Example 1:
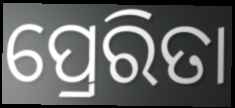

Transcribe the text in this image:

ପ୍ରେରିତା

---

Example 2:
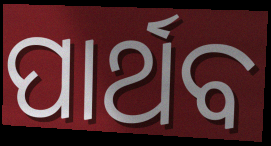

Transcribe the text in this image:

ପାର୍ଥବ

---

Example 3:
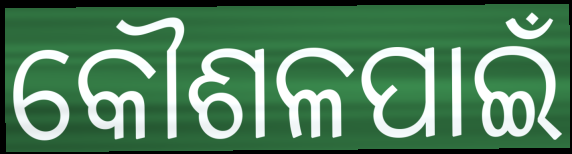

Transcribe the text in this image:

କୌଶଳପାଇଁ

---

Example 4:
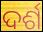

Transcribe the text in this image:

ଦର୍ଶ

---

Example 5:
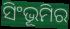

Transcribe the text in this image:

ସିଂଭୂମିର